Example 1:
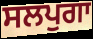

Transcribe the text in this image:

ਸਲਪੁਗਾ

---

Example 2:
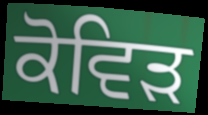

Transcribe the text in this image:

ਕੋਵਿਡ਼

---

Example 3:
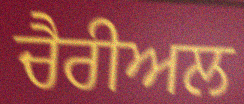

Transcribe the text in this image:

ਚੈਰੀਅਲ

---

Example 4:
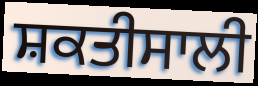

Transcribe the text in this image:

ਸ਼ਕਤੀਸਾਲੀ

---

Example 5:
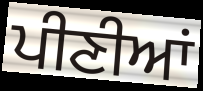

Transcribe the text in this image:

ਪੀਣੀਆਂ